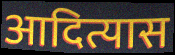
आदित्यास